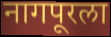
नागपूरला